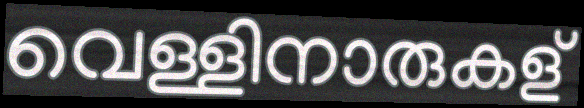
വെള്ളിനാരുകള്